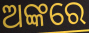
ଅଙ୍କରେ